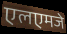
एलएमजे